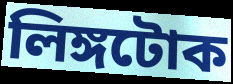
লিঙ্গটোক